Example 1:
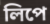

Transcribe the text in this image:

লিপে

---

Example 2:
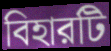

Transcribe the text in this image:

বিহারটি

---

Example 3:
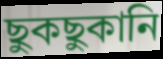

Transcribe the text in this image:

ছুকছুকানি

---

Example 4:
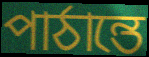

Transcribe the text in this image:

পাঠান্তে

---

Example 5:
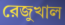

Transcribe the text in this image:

রেজুখাল